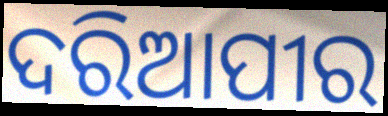
ଦରିଆପୀର